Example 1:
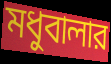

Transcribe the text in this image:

মধুবালার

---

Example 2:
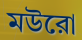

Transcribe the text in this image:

মউরো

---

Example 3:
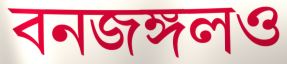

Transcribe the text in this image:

বনজঙ্গলও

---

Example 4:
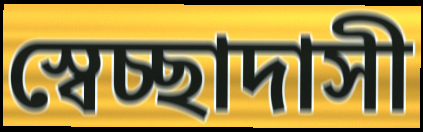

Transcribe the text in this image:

স্বেচ্ছাদাসী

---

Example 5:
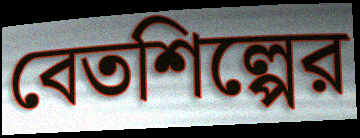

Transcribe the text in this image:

বেতশিল্পের